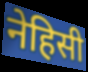
नेहिसी